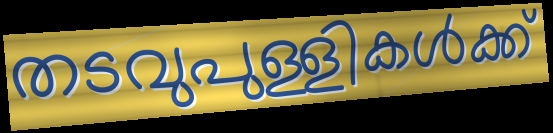
തടവുപുള്ളികൾക്ക്